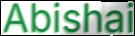
Abishai